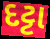
દટ્ટા